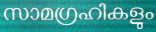
സാമഗ്രഹികളും